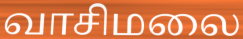
வாசிமலை